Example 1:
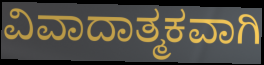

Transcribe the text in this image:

ವಿವಾದಾತ್ಮಕವಾಗಿ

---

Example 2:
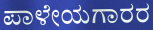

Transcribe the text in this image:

ಪಾಳೇಯಗಾರರ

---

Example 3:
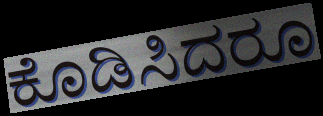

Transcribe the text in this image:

ಕೊಡಿಸಿದರೂ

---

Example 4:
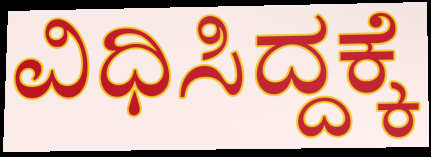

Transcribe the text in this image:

ವಿಧಿಸಿದ್ದಕ್ಕೆ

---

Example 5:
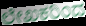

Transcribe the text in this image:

ಲೇಖಕರಿಂದ